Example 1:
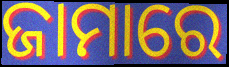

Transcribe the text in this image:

ଜାମାରେ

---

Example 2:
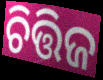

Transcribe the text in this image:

ଚିତ୍ତିଜ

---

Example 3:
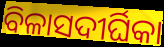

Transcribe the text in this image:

ବିଳାସଦୀର୍ଘିକା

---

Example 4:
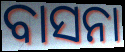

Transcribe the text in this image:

ବାସନା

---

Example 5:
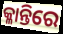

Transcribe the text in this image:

କ୍ଳାନ୍ତିରେ